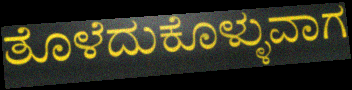
ತೊಳೆದುಕೊಳ್ಳುವಾಗ